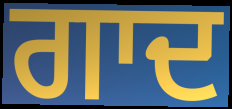
ਗਾਦ